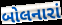
બોલનારાં